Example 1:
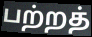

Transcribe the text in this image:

பற்றத்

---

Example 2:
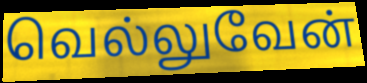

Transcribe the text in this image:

வெல்லுவேன்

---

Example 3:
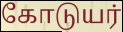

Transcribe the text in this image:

கோடுயர்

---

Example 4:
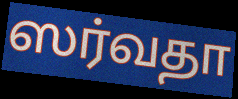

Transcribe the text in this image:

ஸர்வதா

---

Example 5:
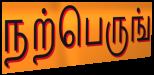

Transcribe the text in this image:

நற்பெருங்